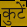
कुटें